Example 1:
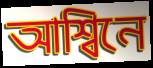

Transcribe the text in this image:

আশ্বিনে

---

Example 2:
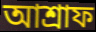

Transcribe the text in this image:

আশ্রাফ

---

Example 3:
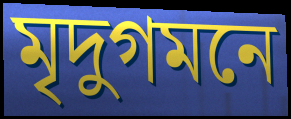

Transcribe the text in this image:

মৃদুগমনে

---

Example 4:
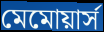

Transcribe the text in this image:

মেমোয়ার্স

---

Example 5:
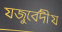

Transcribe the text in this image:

যজুর্বেদীয